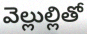
వెల్లుల్లితో